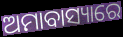
ଅମାବାସ୍ୟାରେ